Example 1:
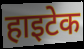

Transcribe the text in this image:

हाइटेक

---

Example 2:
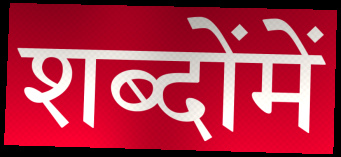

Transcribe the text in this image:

शब्दोंमें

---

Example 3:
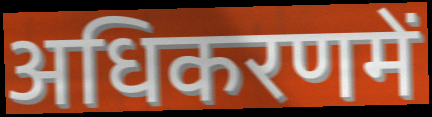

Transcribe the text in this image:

अधिकरणमें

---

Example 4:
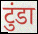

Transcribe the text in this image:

टुंडा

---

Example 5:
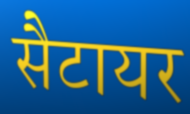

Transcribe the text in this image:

सैटायर